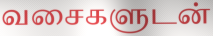
வசைகளுடன்